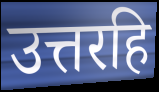
उत्तरहि